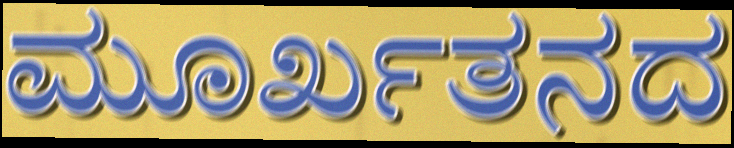
ಮೂರ್ಖತನದ